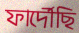
ফাৰ্দৌছি